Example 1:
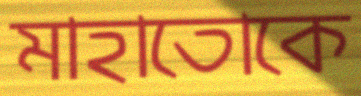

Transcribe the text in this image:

মাহাতোকে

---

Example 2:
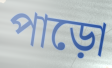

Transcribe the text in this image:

পাড়ো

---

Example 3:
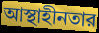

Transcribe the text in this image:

আস্থাহীনতার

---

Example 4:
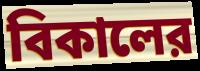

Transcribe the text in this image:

বিকালের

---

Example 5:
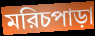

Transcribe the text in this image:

মরিচপাড়া